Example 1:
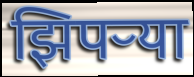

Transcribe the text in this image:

झिपऱ्या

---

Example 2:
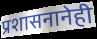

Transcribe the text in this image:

प्रशासनानेही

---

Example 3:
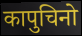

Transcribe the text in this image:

कापुचिनो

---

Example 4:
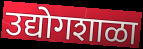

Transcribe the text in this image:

उद्योगशाळा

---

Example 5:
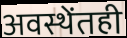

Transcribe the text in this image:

अवस्थेंतही